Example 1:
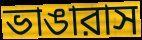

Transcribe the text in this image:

ভাঙারাস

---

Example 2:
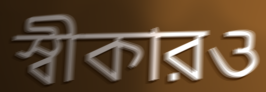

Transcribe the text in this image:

স্বীকারও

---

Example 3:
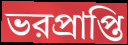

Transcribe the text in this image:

ভরপ্রাপ্তি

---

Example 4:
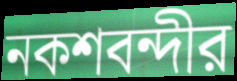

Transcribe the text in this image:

নকশবন্দীর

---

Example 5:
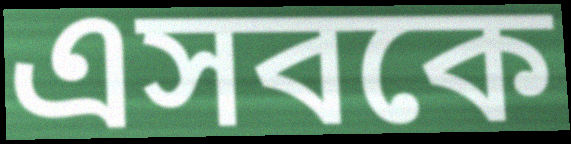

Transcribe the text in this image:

এসবকে